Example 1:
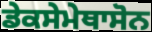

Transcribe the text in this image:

ਡੇਕਸੇਮੇਥਾਸੋਨ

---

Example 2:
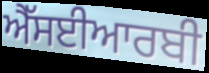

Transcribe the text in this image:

ਐੱਸਈਆਰਬੀ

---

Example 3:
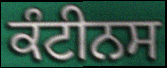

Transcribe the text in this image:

ਕੰਟੀਨਸ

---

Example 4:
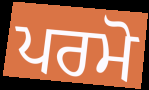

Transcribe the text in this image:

ਪਰਮੋ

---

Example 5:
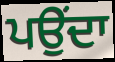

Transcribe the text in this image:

ਪਉਂਦਾ